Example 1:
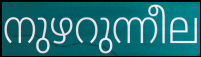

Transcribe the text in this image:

നുഴറുന്നീല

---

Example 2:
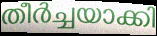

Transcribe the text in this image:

തീർച്ചയാക്കി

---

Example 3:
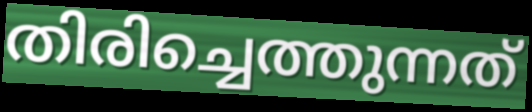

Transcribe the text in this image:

തിരിച്ചെത്തുന്നത്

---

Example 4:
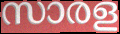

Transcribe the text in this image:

സാരള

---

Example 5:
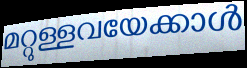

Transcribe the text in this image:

മറ്റുള്ളവയേക്കാൾ